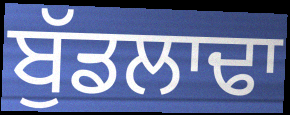
ਬੁੱਡਲਾਢਾ